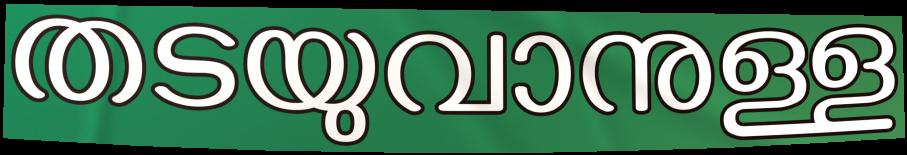
തടയുവാനുള്ള